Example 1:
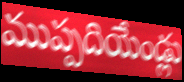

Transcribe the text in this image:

ముప్పదియేండ్లు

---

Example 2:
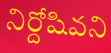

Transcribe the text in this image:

నిర్దోషివని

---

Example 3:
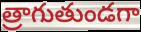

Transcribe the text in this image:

త్రాగుతుండగా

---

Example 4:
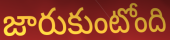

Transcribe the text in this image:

జారుకుంటోంది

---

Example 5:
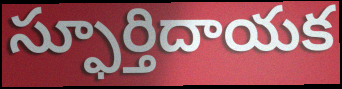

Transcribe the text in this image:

స్ఫూర్తిదాయక